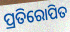
ପ୍ରତିରୋପିତ